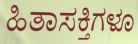
ಹಿತಾಸಕ್ತಿಗಳೂ